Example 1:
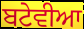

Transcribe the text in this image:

ਬਟੇਵੀਆ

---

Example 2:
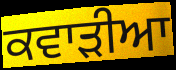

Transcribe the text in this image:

ਕਵਾੜੀਆ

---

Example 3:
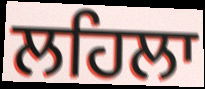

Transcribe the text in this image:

ਲਹਿਲਾ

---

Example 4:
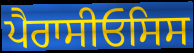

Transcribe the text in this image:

ਪੈਰਾਸੀਓਸਿਸ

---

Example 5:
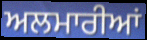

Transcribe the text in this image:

ਅਲਮਾਰੀਆਂ